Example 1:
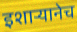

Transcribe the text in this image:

इशाऱ्यानेच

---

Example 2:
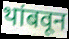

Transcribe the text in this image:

थांबवून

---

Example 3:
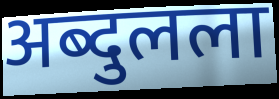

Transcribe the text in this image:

अब्दुलला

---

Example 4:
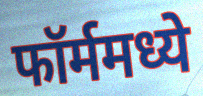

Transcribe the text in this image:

फॉर्ममध्ये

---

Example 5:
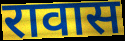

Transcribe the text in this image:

रावास